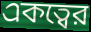
একত্বের